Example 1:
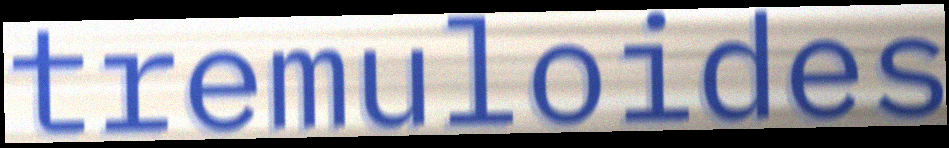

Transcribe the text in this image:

tremuloides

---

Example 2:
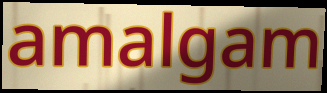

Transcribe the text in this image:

amalgam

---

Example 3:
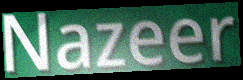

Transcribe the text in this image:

Nazeer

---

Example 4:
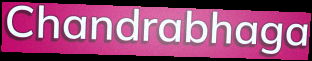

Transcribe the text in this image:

Chandrabhaga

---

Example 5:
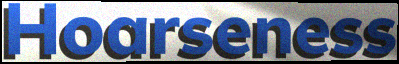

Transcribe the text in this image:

Hoarseness